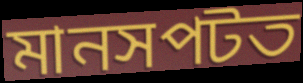
মানসপটত